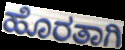
ಹೊರತಾಗಿ